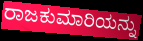
ರಾಜಕುಮಾರಿಯನ್ನು